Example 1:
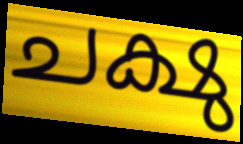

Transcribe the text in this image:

ചക്ഷു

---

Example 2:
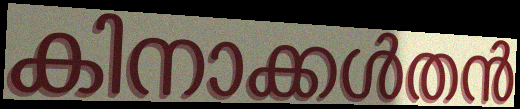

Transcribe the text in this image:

കിനാക്കൾതൻ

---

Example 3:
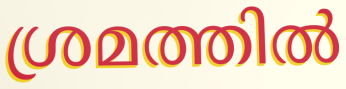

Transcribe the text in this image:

ശ്രമത്തിൽ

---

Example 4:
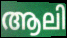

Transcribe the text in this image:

ആലി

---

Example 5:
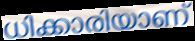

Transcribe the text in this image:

ധിക്കാരിയാണ്